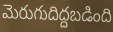
మెరుగుదిద్దబడింది